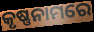
କୃଷ୍ଣନାମରେ